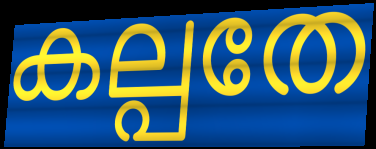
കല്പതേ